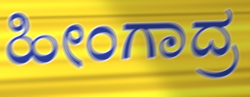
ಹೀಂಗಾದ್ರ